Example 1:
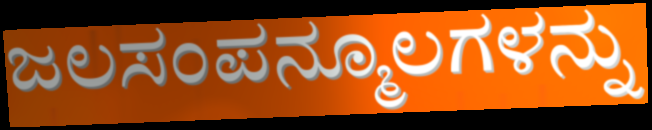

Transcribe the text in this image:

ಜಲಸಂಪನ್ಮೂಲಗಳನ್ನು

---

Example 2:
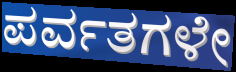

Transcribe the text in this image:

ಪರ್ವತಗಳೇ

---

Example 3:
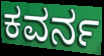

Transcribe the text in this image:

ಕವರ್ನ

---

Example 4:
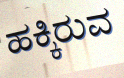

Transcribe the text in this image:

ಹಕ್ಕಿರುವ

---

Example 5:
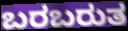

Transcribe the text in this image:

ಬರಬರುತ